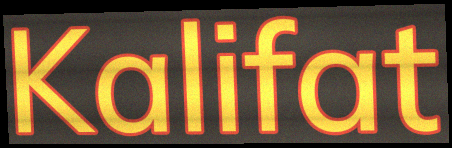
Kalifat